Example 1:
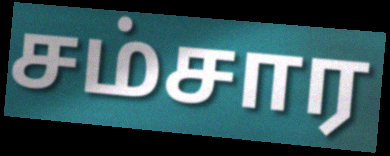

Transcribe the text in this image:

சம்சார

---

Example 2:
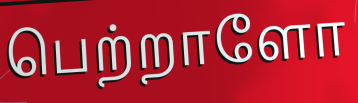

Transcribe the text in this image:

பெற்றாளோ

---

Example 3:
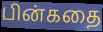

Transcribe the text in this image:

பின்கதை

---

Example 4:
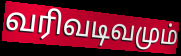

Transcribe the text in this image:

வரிவடிவமும்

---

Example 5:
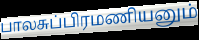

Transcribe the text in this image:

பாலசுப்பிரமணியனும்